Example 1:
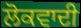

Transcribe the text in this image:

ਲੋਕਵਾਦੀ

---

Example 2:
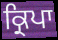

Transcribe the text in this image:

ਕ੍ਰਿਪਾ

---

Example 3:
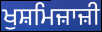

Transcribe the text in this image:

ਖੁਸ਼ਮਿਜ਼ਾਜ਼ੀ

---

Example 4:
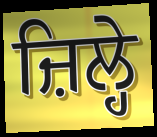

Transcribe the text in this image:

ਜ਼ਿਲ੍ਹੇ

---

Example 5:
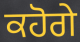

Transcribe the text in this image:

ਕਹੋਗੇ